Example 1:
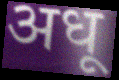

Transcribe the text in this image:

अधू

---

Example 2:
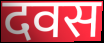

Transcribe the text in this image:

दवस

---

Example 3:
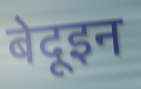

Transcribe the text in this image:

बेदूइन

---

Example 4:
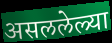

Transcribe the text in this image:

असललेल्या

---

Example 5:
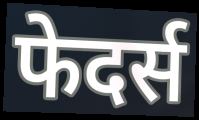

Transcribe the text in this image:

फेदर्स